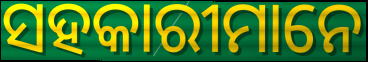
ସହକାରୀମାନେ